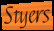
Styers